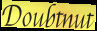
Doubtnut